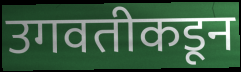
उगवतीकडून